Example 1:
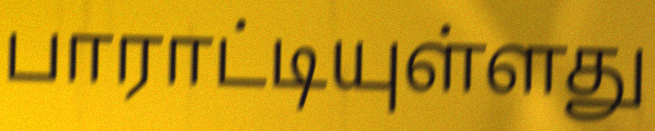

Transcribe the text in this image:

பாராட்டியுள்ளது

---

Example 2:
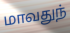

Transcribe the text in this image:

மாவதுந்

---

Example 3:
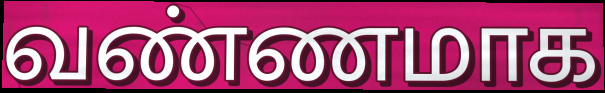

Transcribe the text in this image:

வண்ணமாக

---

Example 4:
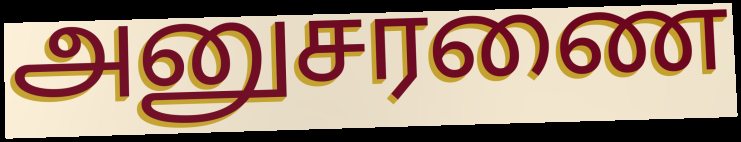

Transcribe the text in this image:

அனுசரணை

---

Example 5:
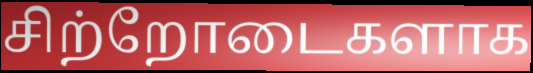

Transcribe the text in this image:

சிற்றோடைகளாக